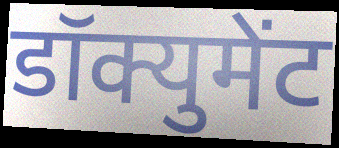
डॉक्युमेंट